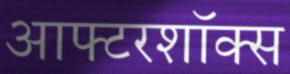
आफ्टरशॉक्स